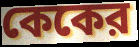
কেকের